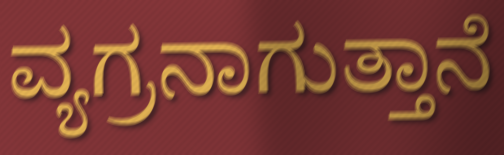
ವ್ಯಗ್ರನಾಗುತ್ತಾನೆ